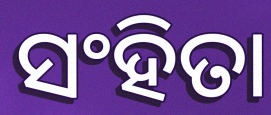
ସଂହିତା